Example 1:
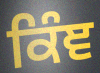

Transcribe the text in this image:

ਕਿੰਞ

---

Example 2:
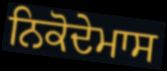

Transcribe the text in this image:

ਨਿਕੋਦੇਮਾਸ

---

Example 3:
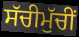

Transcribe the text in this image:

ਸੱਚੀਮੁੱਚੀਂ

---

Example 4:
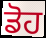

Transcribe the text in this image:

ਡੋਹ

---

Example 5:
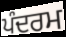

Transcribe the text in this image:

ਪੰਦਰਮ